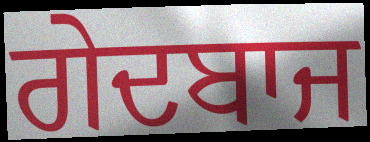
ਗੇਦਬਾਜ